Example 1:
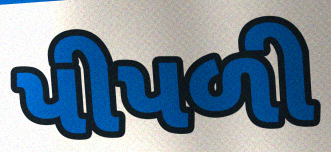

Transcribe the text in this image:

પીપળી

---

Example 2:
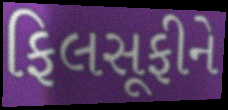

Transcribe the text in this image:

ફિલસૂફીને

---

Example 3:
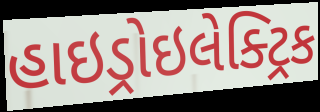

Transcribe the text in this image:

હાઇડ્રોઇલેક્ટ્રિક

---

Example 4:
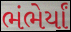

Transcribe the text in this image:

ભંભેર્યાં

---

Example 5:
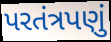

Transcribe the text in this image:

પરતંત્રપણું